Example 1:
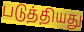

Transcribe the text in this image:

படுத்தியது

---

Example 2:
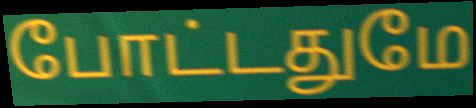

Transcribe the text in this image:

போட்டதுமே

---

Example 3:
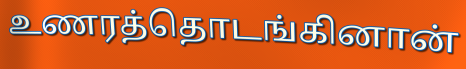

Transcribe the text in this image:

உணரத்தொடங்கினான்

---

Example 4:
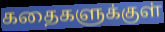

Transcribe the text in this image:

கதைகளுக்குள்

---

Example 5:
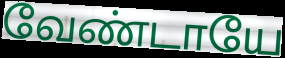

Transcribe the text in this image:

வேண்டாயே